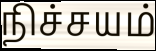
நிச்சயம்